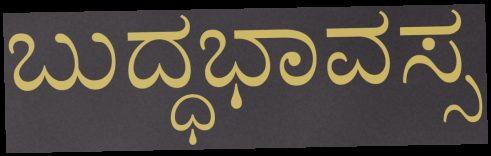
ಬುದ್ಧಭಾವಸ್ಸ